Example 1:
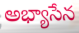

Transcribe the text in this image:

అభ్యాసేన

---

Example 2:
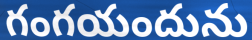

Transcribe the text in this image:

గంగయందును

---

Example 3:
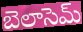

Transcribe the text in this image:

బెలాసెమ్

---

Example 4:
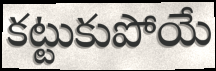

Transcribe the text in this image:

కట్టుకుపోయే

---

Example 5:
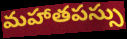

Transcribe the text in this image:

మహాతపస్సు